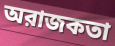
অরাজকতা